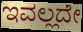
ಇವಲ್ಲದೇ